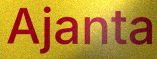
Ajanta